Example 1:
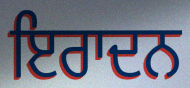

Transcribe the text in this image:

ਇਰਾਦਨ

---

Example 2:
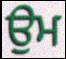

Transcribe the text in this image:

ਉਮ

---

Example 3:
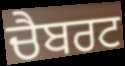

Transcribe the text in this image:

ਚੈਬਰਟ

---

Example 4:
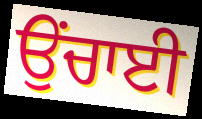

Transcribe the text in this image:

ਉਂਚਾਈ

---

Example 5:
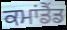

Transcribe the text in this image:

ਕਮਾਂਡੈਂਡ